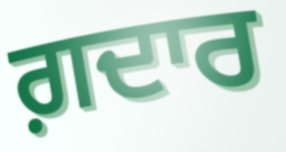
ਗ਼ਦਾਰ